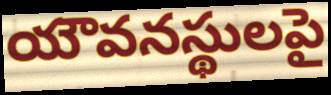
యౌవనస్థులపై